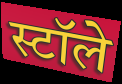
स्टॉले